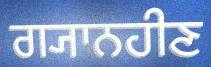
ਗ੍ਯਾਨਹੀਣ